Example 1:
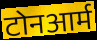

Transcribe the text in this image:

टोनआर्म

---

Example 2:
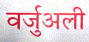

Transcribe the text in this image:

वर्जुअली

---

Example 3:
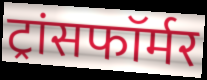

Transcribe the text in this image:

ट्रांसफॉर्मर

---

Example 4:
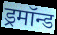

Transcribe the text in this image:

ड्रमॉन्ड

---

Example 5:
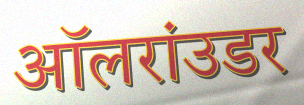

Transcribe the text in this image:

ऑलरांउडर